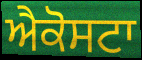
ਐਕੋਸਟਾ